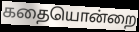
கதையொன்றை